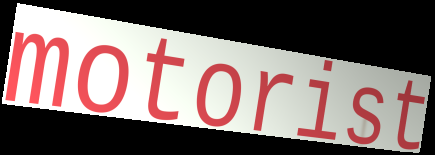
motorist